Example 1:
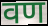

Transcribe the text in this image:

वण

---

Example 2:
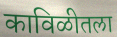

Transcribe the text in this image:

काविळीतला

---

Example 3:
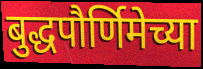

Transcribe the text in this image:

बुद्धपौर्णिमेच्या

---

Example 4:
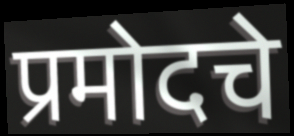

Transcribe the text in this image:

प्रमोदचे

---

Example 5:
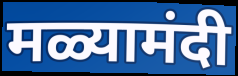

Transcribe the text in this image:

मळ्यामंदी